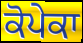
ਕੋਪੇਕਾ